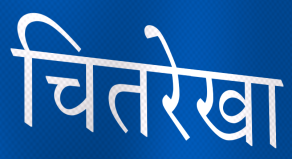
चितरेखा